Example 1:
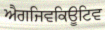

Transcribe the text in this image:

ਐਗਜਿਵਕਿਊਟਿਵ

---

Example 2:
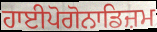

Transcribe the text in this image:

ਹਾਈਪੋਗੋਨਾਡਿਜ਼ਮ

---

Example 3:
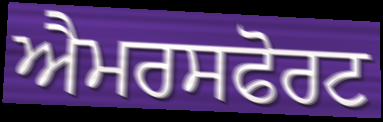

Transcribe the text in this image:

ਐਮਰਸਫੋਰਟ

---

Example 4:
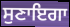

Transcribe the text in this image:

ਸੁਣਾਇਗਾ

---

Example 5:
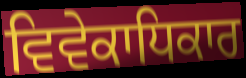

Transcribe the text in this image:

ਵਿਵੇਕਾਧਿਕਾਰ